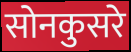
सोनकुसरे